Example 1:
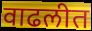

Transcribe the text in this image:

वाढलीत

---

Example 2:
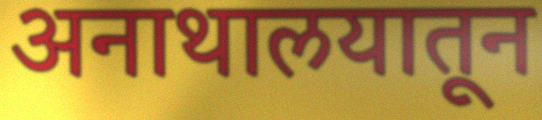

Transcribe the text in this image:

अनाथालयातून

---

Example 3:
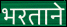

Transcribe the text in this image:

भरताने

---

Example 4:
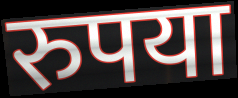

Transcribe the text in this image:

रुपया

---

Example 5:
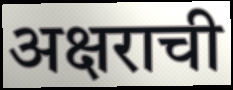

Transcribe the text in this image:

अक्षराची